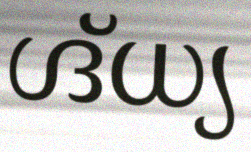
ഗ്ദ്ധ്യ